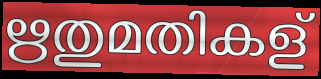
ഋതുമതികള്